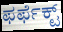
ಫರ್ಫೆಕ್ಟ್